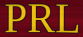
PRL